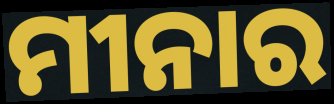
ମୀନାର